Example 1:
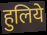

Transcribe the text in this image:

हुलिये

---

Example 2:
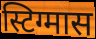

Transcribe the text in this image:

स्टिग्मास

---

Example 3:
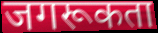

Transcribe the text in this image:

जगरूकता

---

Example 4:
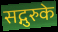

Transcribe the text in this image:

सद्गुरुके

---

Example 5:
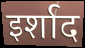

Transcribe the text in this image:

इर्शाद